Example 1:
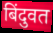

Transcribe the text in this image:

बिंदुवत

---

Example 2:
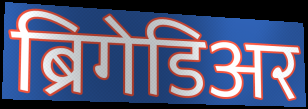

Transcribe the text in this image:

ब्रिगेडिअर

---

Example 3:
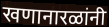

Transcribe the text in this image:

खणानारळांनी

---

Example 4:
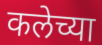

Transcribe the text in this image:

कलेच्या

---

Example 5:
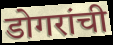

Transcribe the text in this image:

डोगरांची